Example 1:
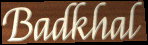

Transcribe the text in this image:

Badkhal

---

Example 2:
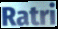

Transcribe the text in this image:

Ratri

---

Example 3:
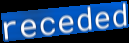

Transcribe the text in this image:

receded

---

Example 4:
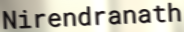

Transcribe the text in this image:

Nirendranath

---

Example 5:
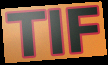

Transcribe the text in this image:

TIF